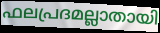
ഫലപ്രദമല്ലാതായി